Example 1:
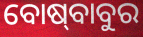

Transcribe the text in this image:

ବୋଷ୍‍ବାବୁର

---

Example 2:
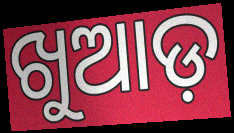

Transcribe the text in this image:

ଖୁଆଡ଼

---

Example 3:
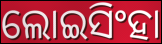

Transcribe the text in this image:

ଲୋଇସିଂହା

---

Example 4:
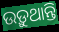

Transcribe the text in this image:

ଉଡ଼ୁଥାନ୍ତି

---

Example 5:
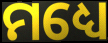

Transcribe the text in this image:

ମଧ୍ୟେ